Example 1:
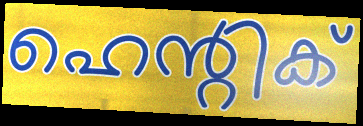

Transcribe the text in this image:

ഹെന്റിക്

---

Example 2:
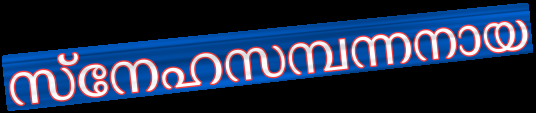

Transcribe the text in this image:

സ്നേഹസമ്പന്നനായ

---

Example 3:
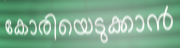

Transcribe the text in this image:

കോരിയെടുക്കാൻ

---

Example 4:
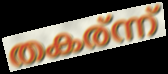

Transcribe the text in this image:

തകര്ന്ന്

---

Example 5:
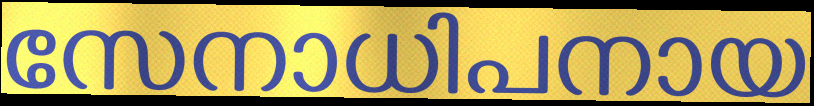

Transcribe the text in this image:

സേനാധിപനായ